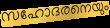
സഹോദരനെയും